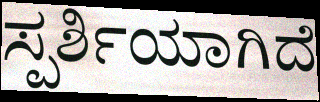
ಸ್ಪರ್ಶಿಯಾಗಿದೆ